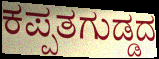
ಕಪ್ಪತಗುಡ್ಡದ